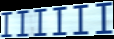
IIIIII